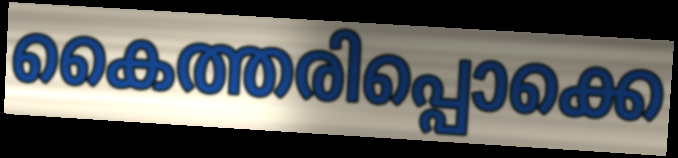
കൈത്തരിപ്പൊക്കെ